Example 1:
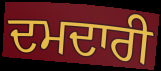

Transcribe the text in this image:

ਦਮਦਾਰੀ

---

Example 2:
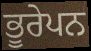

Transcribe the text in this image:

ਭੂਰੇਪਨ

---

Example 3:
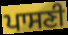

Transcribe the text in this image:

ਪਾਸਣੀ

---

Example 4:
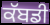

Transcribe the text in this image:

ਕੱਬਡੀ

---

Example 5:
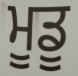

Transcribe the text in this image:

ਮੂਡੂ